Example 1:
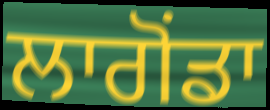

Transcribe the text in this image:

ਲਾਗੋਂਡਾ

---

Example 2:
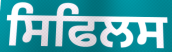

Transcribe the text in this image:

ਸਿਫਿਲਸ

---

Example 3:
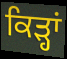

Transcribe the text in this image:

ਕਿੜ੍ਹਾਂ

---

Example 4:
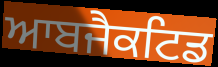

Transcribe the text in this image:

ਆਬਜੈਕਟਿਡ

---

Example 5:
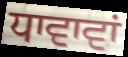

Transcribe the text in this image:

ਧਾਵਾਵਾਂ